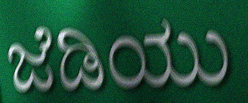
ಜೆಡಿಯು